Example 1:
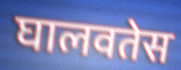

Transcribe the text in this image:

घालवतेस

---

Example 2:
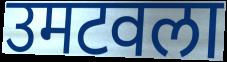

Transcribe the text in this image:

उमटवला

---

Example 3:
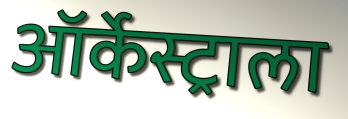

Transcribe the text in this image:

ऑर्केस्ट्राला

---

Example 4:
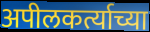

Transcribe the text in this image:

अपीलकर्त्याच्या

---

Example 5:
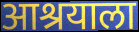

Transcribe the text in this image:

आश्रयाला